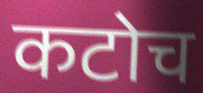
कटोच